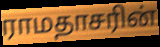
ராமதாசரின்